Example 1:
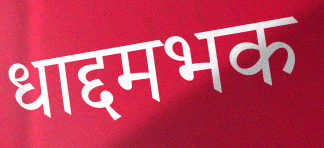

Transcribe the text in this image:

धाद्दमभक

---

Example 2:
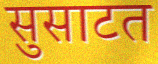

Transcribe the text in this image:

सुसाटत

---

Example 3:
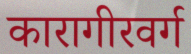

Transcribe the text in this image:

कारागीरवर्ग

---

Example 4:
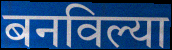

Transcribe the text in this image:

बनविल्या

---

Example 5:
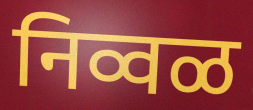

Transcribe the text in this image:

निव्वळ